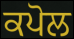
ਕਪੋਲ